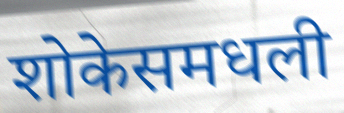
शोकेसमधली